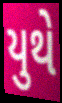
યુથે